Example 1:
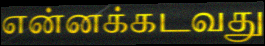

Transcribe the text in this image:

என்னக்கடவது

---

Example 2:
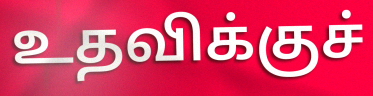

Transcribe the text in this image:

உதவிக்குச்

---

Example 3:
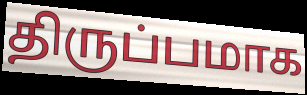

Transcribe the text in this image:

திருப்பமாக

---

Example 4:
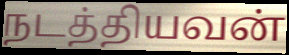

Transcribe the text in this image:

நடத்தியவன்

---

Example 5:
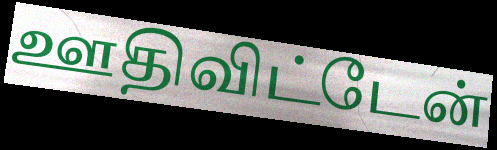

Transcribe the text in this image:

ஊதிவிட்டேன்